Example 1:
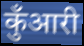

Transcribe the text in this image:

कुँआरी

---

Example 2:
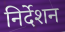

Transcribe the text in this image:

निर्देशन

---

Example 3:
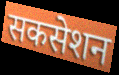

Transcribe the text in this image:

सकसेशन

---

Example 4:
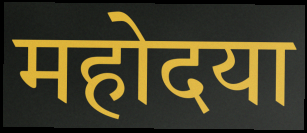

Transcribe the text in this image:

महोदया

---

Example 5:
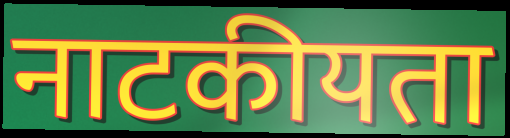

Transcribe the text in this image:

नाटकीयता